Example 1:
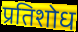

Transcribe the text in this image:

प्रतिशोध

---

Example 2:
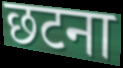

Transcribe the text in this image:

छटना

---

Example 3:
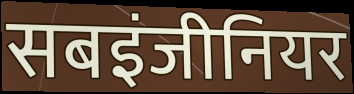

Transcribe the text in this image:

सबइंजीनियर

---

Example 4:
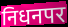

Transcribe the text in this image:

निधनपर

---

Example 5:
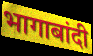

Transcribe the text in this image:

भागाबांदी